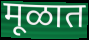
मूळात